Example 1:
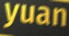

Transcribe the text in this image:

yuan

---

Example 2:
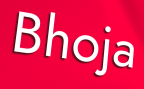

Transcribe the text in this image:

Bhoja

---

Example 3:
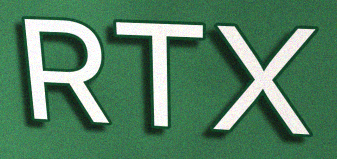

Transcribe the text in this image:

RTX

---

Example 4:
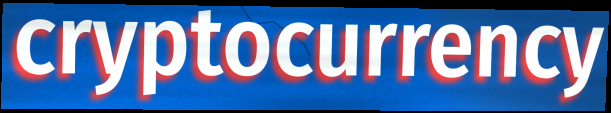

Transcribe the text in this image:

cryptocurrency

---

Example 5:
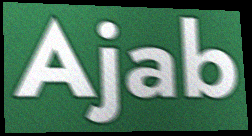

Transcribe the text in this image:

Ajab